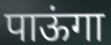
पाऊंगा